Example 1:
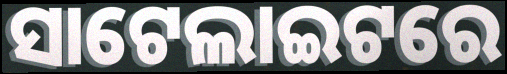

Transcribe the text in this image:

ସାଟେଲାଇଟରେ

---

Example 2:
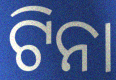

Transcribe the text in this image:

ଟିନା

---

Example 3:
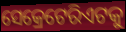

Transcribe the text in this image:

ସେକ୍ରେଟେରିଏଟକୁ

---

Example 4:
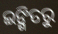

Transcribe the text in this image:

ଇଙ୍ଗିତରୁ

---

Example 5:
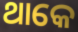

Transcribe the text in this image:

ଥାକେ